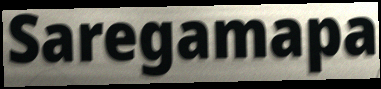
Saregamapa